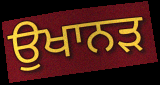
ਉਖਾਨੜ